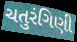
ચતુરંગિણી